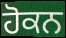
ਹੋਕਨ